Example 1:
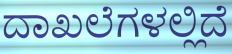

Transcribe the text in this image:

ದಾಖಲೆಗಳಲ್ಲಿದೆ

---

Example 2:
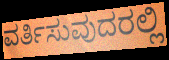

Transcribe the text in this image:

ವರ್ತಿಸುವುದರಲ್ಲಿ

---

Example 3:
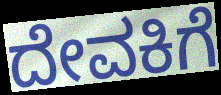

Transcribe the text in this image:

ದೇವಕಿಗೆ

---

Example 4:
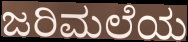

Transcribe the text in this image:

ಜರಿಮಲೆಯ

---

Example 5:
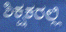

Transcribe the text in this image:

ಶಿಕ್ಷಕರಲ್ಲಿ